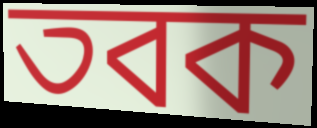
তবক